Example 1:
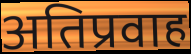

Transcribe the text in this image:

अतिप्रवाह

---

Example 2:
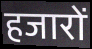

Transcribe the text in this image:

हजारों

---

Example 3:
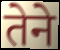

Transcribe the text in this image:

तेने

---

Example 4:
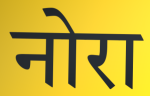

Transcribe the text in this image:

नोरा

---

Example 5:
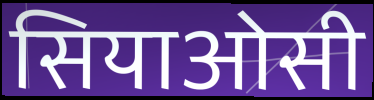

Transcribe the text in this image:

सियाओसी